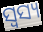
ସ୍ଵସ୍ଯ